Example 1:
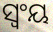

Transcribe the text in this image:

ସ୍ୱଂୟ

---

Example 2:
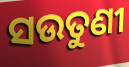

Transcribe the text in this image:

ସଉତୁଣୀ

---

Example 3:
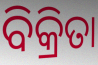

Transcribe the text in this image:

ବିକ୍ରିତା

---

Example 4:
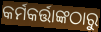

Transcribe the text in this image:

କର୍ମକର୍ତ୍ତାଙ୍କଠାରୁ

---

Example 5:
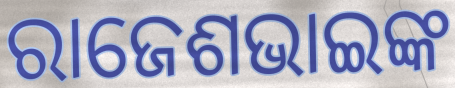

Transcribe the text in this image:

ରାଜେଶଭାଇଙ୍କ